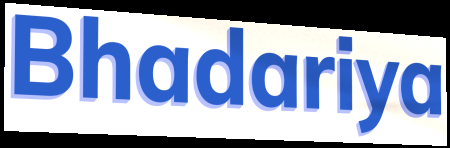
Bhadariya